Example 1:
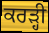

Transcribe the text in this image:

ਕਰੜ੍ਹੀ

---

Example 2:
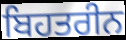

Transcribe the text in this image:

ਬਿਹਤਰੀਨ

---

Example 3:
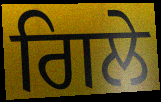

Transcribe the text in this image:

ਗਿਲੇ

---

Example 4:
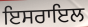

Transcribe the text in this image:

ਇਸਰਾਇਲ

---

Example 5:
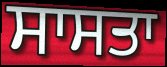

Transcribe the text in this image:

ਸਾਸਤਾ